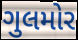
ગુલમોર